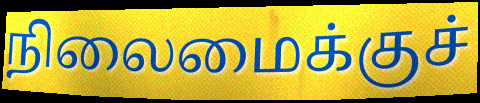
நிலைமைக்குச்